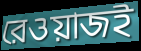
রেওয়াজই